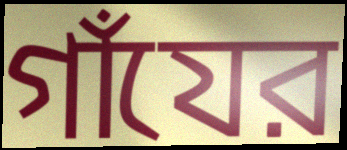
গাঁযের